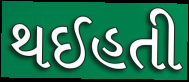
થઈહતી